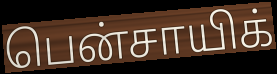
பென்சாயிக்